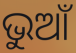
ଭୁଆଁ